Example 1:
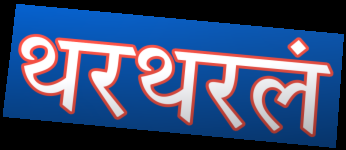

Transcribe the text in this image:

थरथरलं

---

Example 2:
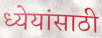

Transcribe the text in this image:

ध्येयांसाठी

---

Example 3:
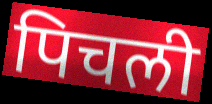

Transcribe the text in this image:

पिचली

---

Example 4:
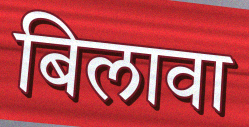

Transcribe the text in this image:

बिलावा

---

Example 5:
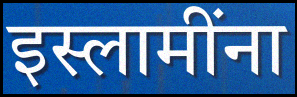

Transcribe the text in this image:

इस्लामींना